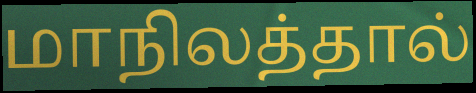
மாநிலத்தால்